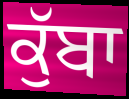
ਕੁੱਬਾ